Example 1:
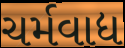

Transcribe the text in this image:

ચર્મવાદ્ય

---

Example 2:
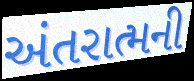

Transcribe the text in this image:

અંતરાત્મની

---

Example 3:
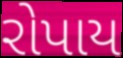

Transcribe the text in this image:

રોપાય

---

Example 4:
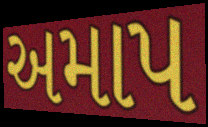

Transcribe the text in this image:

અમાપ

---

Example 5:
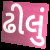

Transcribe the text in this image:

ઢીલું